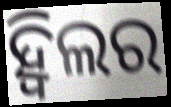
ହ୍ଵିଲର